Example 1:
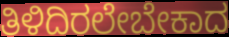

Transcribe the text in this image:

ತಿಳಿದಿರಲೇಬೇಕಾದ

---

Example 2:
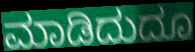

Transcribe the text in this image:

ಮಾಡಿದುದೂ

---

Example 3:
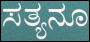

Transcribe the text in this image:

ಸತ್ಯನೂ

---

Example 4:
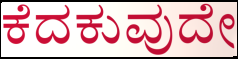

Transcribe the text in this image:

ಕೆದಕುವುದೇ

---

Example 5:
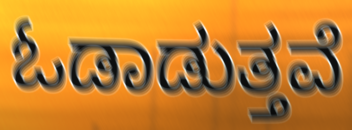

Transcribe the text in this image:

ಓಡಾಡುತ್ತವೆ